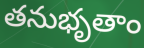
తనుభృతాం